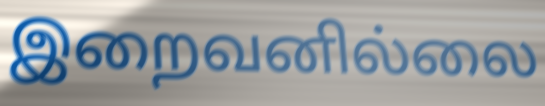
இறைவனில்லை